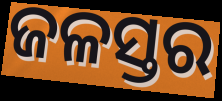
ଜଳସ୍ତର